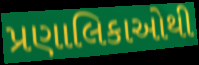
પ્રણાલિકાઓથી